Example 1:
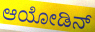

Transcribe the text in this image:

ಆಯೋಡಿನ್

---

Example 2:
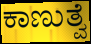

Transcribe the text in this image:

ಕಾಣುತ್ವೆ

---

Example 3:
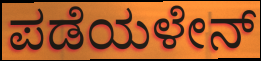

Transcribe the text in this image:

ಪಡೆಯಳೇನ್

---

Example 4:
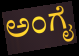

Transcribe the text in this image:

ಅಂಗೈ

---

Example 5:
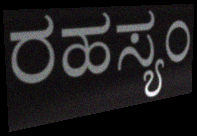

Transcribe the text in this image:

ರಹಸ್ಯಂ